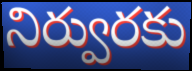
నిర్వురకు